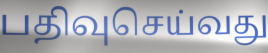
பதிவுசெய்வது